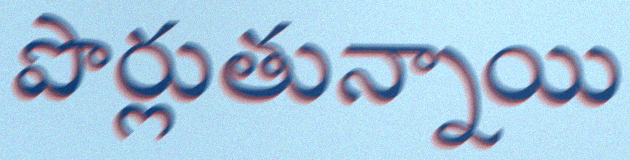
పొర్లుతున్నాయి